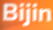
Bijin